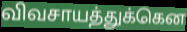
விவசாயத்துக்கென